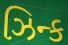
ઝિન્ક